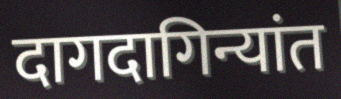
दागदागिन्यांत